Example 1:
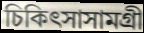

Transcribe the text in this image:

চিকিৎসাসামগ্রী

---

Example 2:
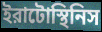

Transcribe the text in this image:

ইরাটোস্থিনিস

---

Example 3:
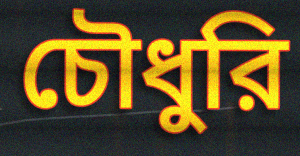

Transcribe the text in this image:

চৌধুরি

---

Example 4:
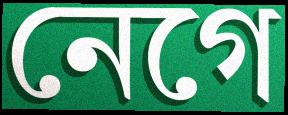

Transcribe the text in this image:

নেগে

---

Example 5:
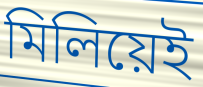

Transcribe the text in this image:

মিলিয়েই